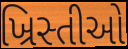
ખ્રિસ્તીઓ